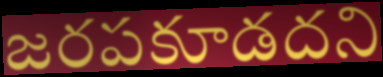
జరపకూడదని